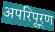
अपरिपूर्ण